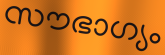
സൗഭാഗ്യം